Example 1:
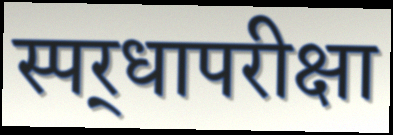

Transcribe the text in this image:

स्पर्धापरीक्षा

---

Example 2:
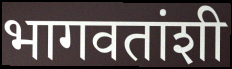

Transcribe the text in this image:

भागवतांशी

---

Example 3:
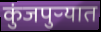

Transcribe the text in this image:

कुंजपुऱ्यात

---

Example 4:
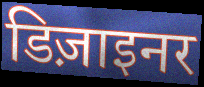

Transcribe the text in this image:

डिज़ाइनर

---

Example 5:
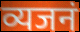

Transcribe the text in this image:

व्यजनं